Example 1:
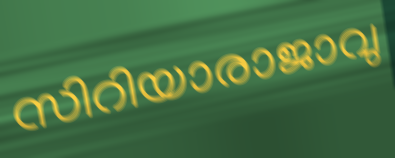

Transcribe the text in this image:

സിറിയാരാജാവു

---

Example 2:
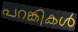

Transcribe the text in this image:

പറങ്കികൾ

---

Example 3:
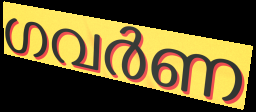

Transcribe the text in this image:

ഗവർണ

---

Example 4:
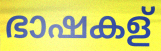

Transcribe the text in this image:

ഭാഷകള്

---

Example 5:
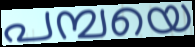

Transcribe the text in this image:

പമ്പയെ